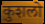
कुशलो